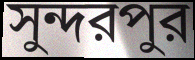
সুন্দরপুর